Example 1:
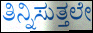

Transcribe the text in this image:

ತಿನ್ನಿಸುತ್ತಲೇ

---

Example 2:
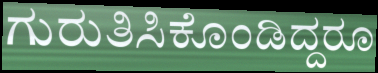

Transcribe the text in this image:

ಗುರುತಿಸಿಕೊಂಡಿದ್ದರೂ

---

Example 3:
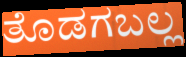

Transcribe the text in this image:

ತೊಡಗಬಲ್ಲ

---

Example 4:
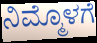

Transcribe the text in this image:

ನಿಮ್ಮೊಳಗೆ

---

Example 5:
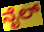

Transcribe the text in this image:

ನೈಲ್